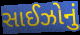
સાઈઝોનું